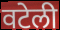
वटेली